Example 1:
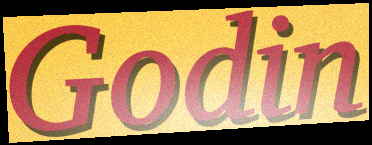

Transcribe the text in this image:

Godin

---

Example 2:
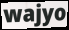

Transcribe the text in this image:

wajyo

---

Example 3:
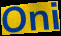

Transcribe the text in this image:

Oni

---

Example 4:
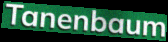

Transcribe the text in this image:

Tanenbaum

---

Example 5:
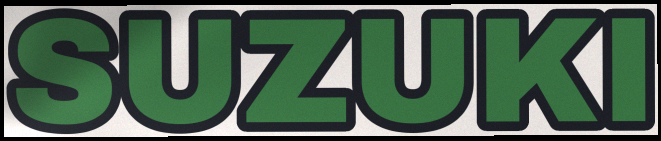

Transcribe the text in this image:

SUZUKI